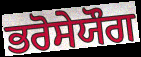
ਭਰੋਸੇਯੌਗ